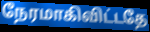
நேரமாகிவிட்டதே